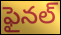
ఫైనల్